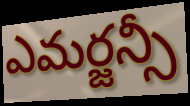
ఎమర్జన్సీ